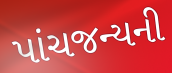
પાંચજન્યની